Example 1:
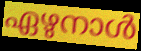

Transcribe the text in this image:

ഏഴുനാൾ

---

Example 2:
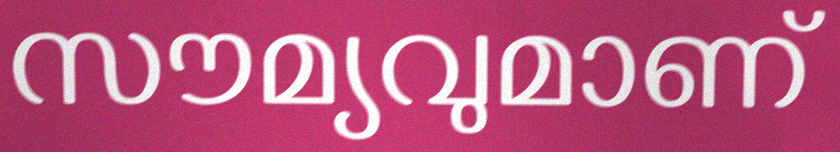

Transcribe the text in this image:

സൗമ്യവുമാണ്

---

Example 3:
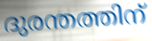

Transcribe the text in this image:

ദുരന്തത്തിന്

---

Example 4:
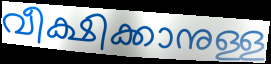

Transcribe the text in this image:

വീക്ഷിക്കാനുള്ള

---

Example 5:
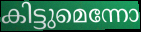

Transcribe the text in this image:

കിട്ടുമെന്നോ